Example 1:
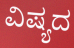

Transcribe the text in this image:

ವಿಷ್ಯದ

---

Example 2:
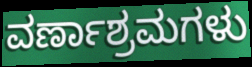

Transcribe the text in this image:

ವರ್ಣಾಶ್ರಮಗಳು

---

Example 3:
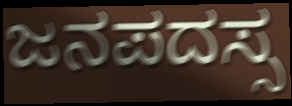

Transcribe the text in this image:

ಜನಪದಸ್ಸ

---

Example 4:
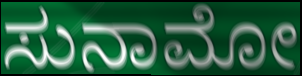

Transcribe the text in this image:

ಸುನಾಮೋ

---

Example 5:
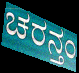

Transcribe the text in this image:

ಚರನ್ತಂ